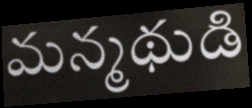
మన్మథుడి